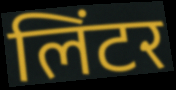
लिंटर